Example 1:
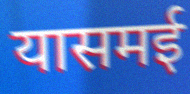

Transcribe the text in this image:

यासमई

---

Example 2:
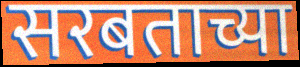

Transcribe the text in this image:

सरबताच्या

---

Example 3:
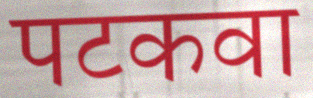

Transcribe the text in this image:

पटकवा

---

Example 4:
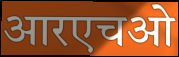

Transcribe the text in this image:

आरएचओ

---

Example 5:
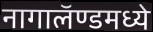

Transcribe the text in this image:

नागालॅण्डमध्ये